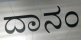
ದಾನಂ